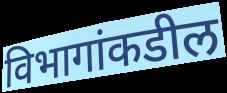
विभागांकडील